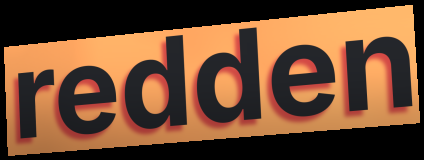
redden